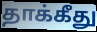
தாக்கீது